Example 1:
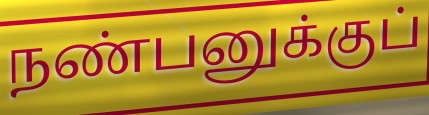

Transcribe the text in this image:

நண்பனுக்குப்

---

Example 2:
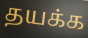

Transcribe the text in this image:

தயக்க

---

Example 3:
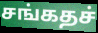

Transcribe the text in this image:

சங்கதச்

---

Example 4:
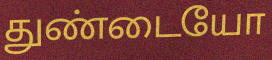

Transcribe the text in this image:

துண்டையோ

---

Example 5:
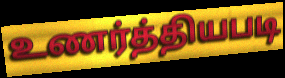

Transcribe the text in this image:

உணர்த்தியபடி